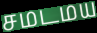
சமடமய